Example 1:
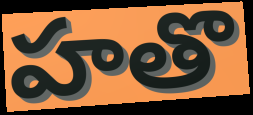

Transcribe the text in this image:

హతొ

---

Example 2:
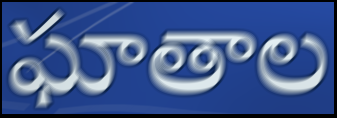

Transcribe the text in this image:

ఘాతాల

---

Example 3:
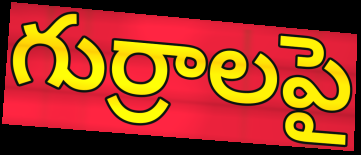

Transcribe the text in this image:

గుర్రాలపై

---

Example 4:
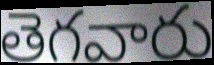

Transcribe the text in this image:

తెగవారు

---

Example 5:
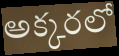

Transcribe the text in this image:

అక్కరలో